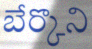
బేర్కొని